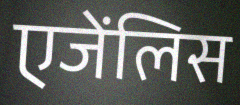
एजेंलिस